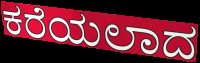
ಕರೆಯಲಾದ